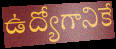
ఉద్యోగానికే